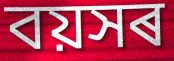
বয়সৰ